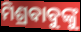
ମିଶ୍ରବାବୁଙ୍କୁ